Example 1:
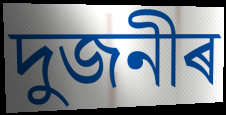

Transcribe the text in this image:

দুজনীৰ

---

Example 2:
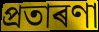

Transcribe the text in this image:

প্ৰতাৰণা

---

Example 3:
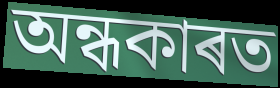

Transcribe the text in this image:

অন্ধকাৰত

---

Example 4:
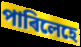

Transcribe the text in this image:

পাৰিলেহে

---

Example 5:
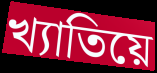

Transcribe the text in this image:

খ্যাতিয়ে